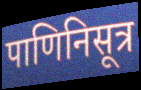
पाणिनिसूत्र